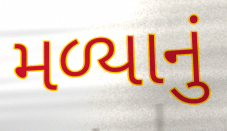
મળ્યાનું